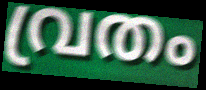
വ്രതം